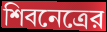
শিবনেত্রের